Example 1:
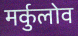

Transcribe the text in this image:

मर्कुलोव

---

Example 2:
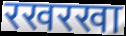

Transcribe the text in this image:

रखरखा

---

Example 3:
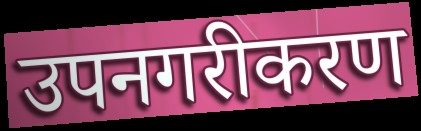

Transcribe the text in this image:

उपनगरीकरण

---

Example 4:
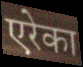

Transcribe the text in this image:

एरेका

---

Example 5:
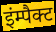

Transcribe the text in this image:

इंम्पैक्ट